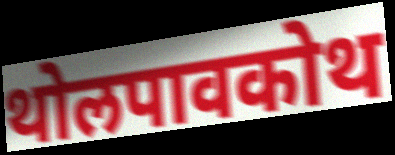
थोलपावकोथ